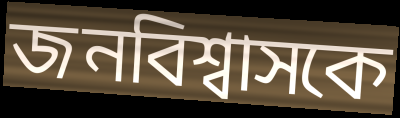
জনবিশ্বাসকে